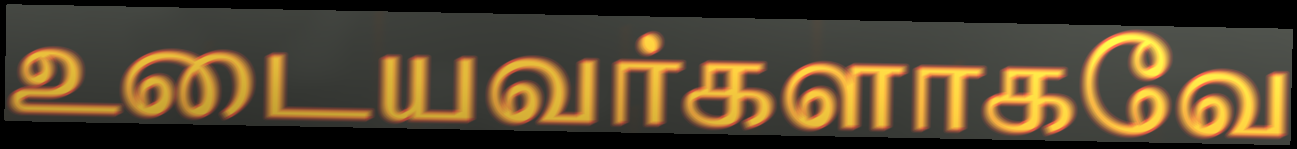
உடையவர்களாகவே